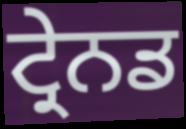
ਟ੍ਰੇਨਡ